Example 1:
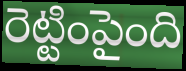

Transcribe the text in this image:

రెట్టింపైంది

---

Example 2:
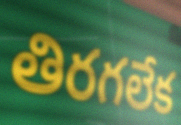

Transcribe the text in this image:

తిరగలేక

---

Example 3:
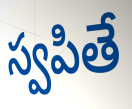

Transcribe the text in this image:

స్వపితే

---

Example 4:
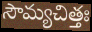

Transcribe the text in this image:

సౌమ్యచిత్తః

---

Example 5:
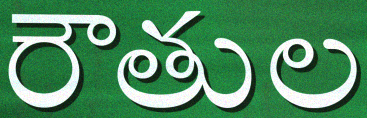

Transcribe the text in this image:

రౌతుల